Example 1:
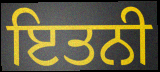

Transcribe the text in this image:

ਇਤਨੀ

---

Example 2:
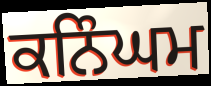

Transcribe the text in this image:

ਕਨਿੰਘਮ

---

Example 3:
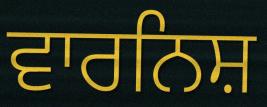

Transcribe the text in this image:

ਵਾਰਨਿਸ਼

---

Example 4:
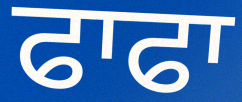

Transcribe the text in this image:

ਫਾਫਾ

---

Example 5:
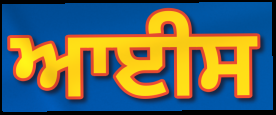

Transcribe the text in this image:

ਆਈਸ